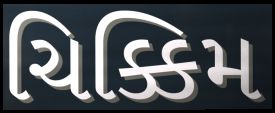
ચિક્કિમ